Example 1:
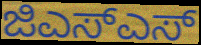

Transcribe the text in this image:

ಜಿಎಸ್ಎಸ್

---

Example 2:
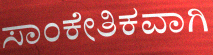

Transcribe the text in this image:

ಸಾಂಕೇತಿಕವಾಗಿ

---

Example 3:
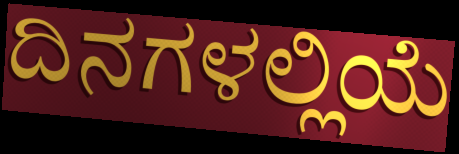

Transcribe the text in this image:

ದಿನಗಳಲ್ಲಿಯೆ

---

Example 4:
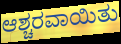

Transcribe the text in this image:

ಆಶ್ಚರವಾಯಿತು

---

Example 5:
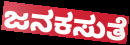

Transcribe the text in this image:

ಜನಕಸುತೆ